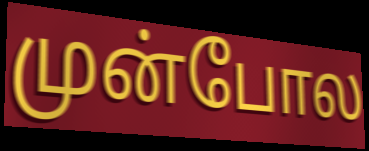
முன்போல